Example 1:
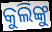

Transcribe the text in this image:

କୁଲିଙ୍କୁ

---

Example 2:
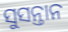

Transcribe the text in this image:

ସୁସନ୍ତାନ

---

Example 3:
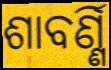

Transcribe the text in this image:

ଶାବର୍ଣ୍ଣି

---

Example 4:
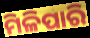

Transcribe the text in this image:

ମିଳିପାରି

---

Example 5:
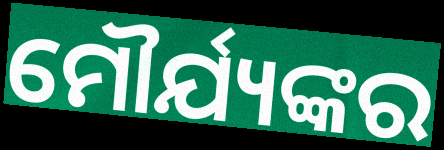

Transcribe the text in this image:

ମୌର୍ଯ୍ୟଙ୍କର